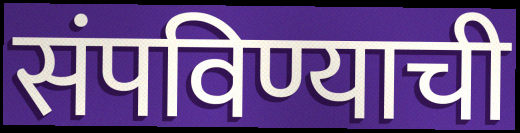
संपविण्याची